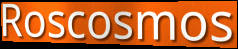
Roscosmos